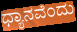
ಧ್ಯಾನವೆಂದು